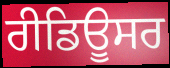
ਰੀਡਿਊਸਰ